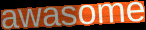
awasome